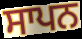
ਸਾਪਨ